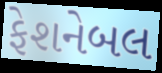
ફેશનેબલ